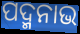
ପଦ୍ମନାଭ